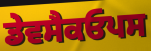
ਡੇਵਸੈਕਓਪਸ